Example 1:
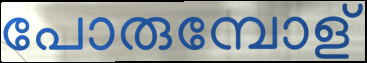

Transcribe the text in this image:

പോരുമ്പോള്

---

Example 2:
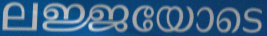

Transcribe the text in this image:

ലജ്ജയോടെ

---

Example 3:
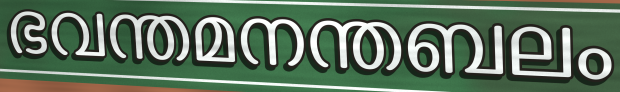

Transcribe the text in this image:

ഭവന്തമനന്തബലം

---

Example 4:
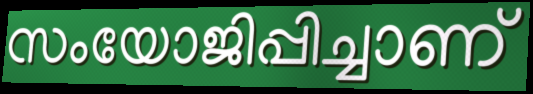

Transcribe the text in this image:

സംയോജിപ്പിച്ചാണ്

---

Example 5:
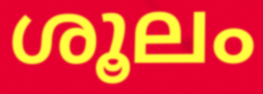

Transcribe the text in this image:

ശൂലം